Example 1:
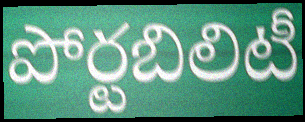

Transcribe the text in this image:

పోర్టబిలిటీ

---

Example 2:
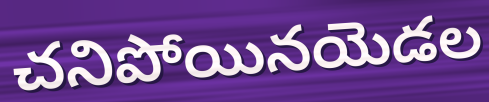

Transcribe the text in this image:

చనిపోయినయెడల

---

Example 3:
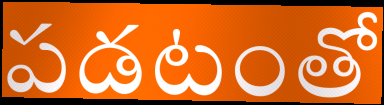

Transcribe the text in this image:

పడటంతో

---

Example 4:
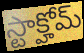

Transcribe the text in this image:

స్టాక్హోమ్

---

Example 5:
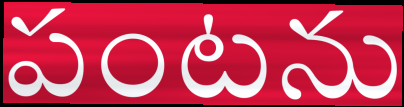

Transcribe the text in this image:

పంటను